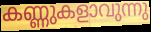
കണ്ണുകളാവുന്നു